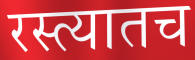
रस्त्यातच